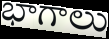
భాగాలు